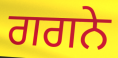
ਗਗਨੇ